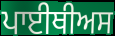
ਪਾਈਥੀਅਸ